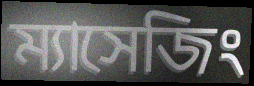
ম্যাসেজিং